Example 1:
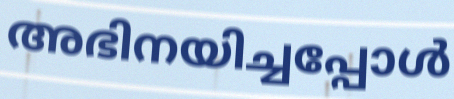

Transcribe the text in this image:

അഭിനയിച്ചപ്പോൾ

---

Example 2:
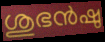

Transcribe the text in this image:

ശുഭൻഷു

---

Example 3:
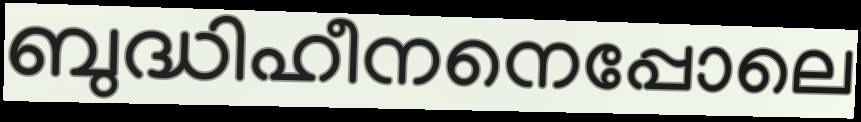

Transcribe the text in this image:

ബുദ്ധിഹീനനെപ്പോലെ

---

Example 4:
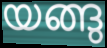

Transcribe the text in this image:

യങ്ങു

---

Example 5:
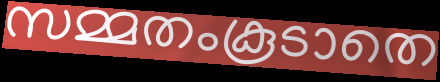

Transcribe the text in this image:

സമ്മതംകൂടാതെ